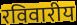
रविवारीय